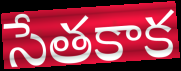
సేతకాక